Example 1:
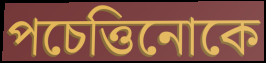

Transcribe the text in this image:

পচেত্তিনোকে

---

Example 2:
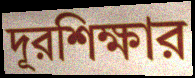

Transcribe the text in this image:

দূরশিক্ষার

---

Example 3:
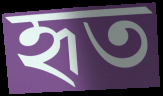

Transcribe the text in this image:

হৃত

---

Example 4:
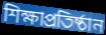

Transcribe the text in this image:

শিক্ষাপ্রতিষ্ঠান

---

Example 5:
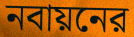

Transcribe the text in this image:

নবায়নের